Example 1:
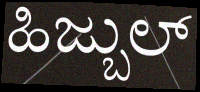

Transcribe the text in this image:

ಹಿಜ್ಬುಲ್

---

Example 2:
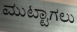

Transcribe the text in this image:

ಮುಟ್ಟಾಗಲು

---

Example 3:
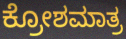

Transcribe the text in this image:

ಕ್ರೋಶಮಾತ್ರ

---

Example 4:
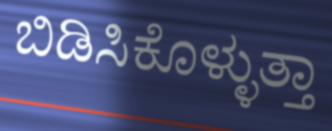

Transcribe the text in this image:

ಬಿಡಿಸಿಕೊಳ್ಳುತ್ತಾ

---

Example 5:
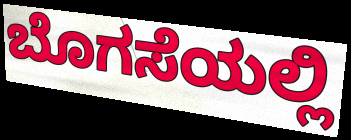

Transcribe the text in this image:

ಬೊಗಸೆಯಲ್ಲಿ